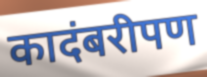
कादंबरीपण